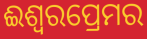
ଈଶ୍ୱରପ୍ରେମର